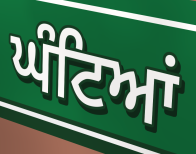
ਘੰਟਿਆਂ